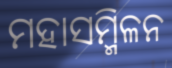
ମହାସମ୍ମିଳନ